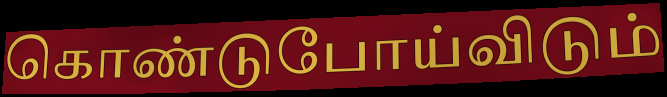
கொண்டுபோய்விடும்